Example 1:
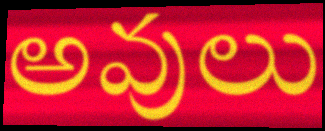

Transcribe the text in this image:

అవులు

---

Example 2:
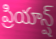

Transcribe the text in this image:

ప్రియాన్ష్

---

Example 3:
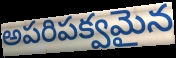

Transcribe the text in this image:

అపరిపక్వమైన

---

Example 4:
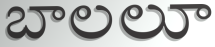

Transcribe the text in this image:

బాలలూ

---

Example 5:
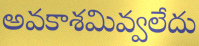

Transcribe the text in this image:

అవకాశమివ్వలేదు